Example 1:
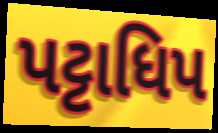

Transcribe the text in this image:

પટ્ટાધિપ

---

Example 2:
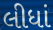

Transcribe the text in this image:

લીધાં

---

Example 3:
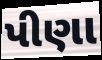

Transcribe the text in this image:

પીણા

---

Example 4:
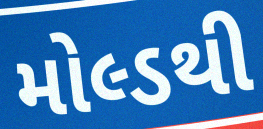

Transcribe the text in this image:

મોલ્ડથી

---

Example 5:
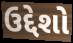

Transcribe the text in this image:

ઉદ્દેશો